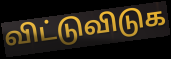
விட்டுவிடுக